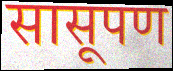
सासूपण